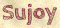
Sujoy